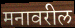
मनावरील